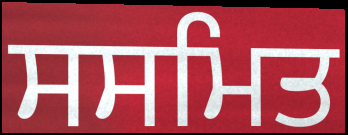
ਸਸਮਿਤ